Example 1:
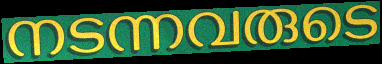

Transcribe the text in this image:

നടന്നവരുടെ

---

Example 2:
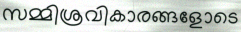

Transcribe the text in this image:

സമ്മിശ്രവികാരങ്ങളോടെ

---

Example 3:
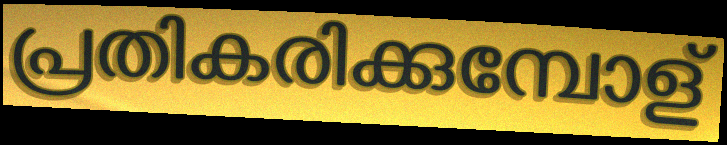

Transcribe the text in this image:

പ്രതികരിക്കുമ്പോള്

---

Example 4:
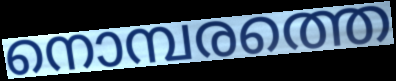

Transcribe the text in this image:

നൊമ്പരത്തെ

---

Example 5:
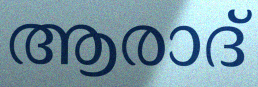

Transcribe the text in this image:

ആരാദ്